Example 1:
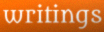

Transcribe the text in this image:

writings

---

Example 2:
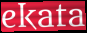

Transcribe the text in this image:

ekata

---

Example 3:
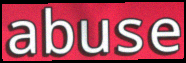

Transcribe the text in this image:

abuse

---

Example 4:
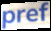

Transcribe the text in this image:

pref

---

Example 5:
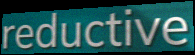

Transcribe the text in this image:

reductive